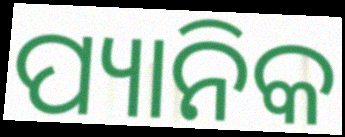
ପ୍ୟାନିକ